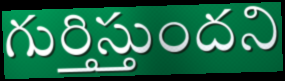
గుర్తిస్తుందని